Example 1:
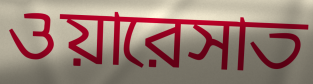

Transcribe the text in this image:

ওয়ারেসাত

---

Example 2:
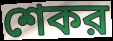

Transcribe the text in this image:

শেকর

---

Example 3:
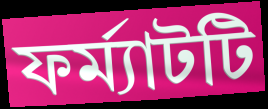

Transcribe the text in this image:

ফর্ম্যাটটি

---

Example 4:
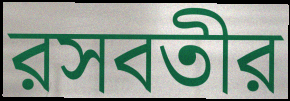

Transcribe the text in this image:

রসবতীর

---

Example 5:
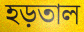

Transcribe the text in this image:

হড়তাল